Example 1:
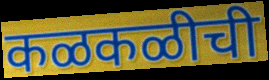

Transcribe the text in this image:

कळकळीची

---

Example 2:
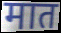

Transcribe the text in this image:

मात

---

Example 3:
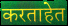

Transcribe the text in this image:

करताहेत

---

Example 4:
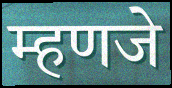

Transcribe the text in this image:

म्हणजे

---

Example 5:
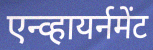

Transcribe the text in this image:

एन्व्हायर्नमेंट